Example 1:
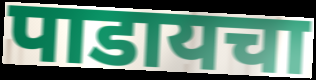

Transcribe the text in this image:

पाडायचा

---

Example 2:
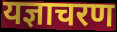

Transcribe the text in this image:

यज्ञाचरण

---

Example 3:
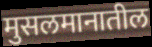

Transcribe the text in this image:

मुसलमानातील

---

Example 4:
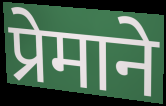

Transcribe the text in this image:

प्रेमाने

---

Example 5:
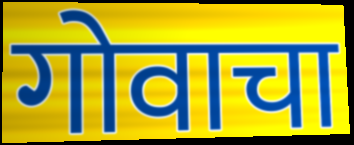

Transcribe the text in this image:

गोवाचा